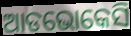
ଆଡଭୋକେସି